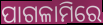
ପାଗଳାମିରେ